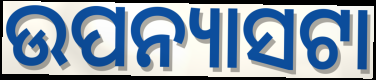
ଉପନ୍ୟାସଟା